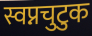
स्वप्नचुटुक